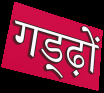
गड्‌ढ़ों